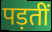
पड़तीं